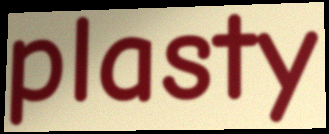
plasty